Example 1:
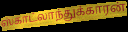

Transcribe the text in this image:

ஸ்காட்லாந்துக்காரன்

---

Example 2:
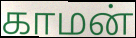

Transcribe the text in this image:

காமன்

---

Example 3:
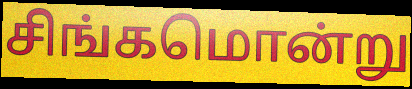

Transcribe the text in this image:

சிங்கமொன்று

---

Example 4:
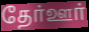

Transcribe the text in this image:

தேர்ஊர்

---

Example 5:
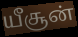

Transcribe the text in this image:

யீசூன்